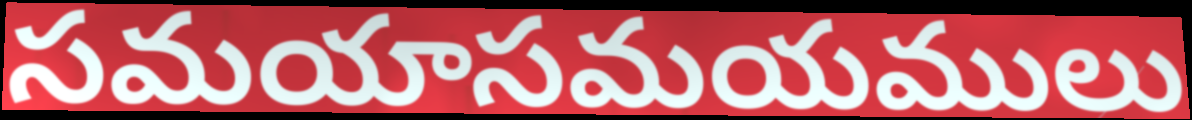
సమయాసమయములు